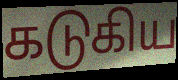
கடுகிய